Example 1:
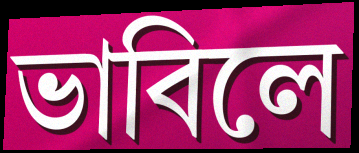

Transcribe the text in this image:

ভাবিলে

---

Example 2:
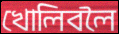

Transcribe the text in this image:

খোলিবলৈ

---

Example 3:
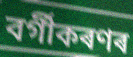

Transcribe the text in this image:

বৰ্গীকৰণৰ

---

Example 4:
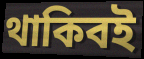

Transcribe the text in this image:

থাকিবই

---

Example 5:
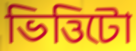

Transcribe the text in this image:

ভিত্তিটো